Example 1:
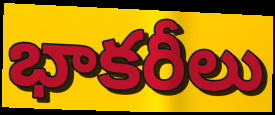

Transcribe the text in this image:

భాకరీలు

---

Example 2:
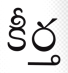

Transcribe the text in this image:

కీర్త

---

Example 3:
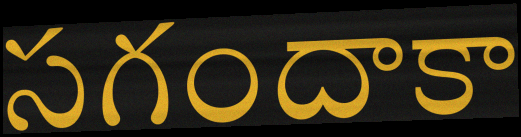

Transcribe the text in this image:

సగందాకా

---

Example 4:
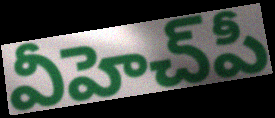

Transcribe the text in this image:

వీహెచ్‌పీ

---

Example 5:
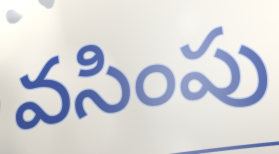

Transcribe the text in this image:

వసింపు